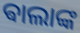
ଵାଲାଙ୍କ